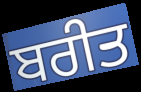
ਬਰੀਤ